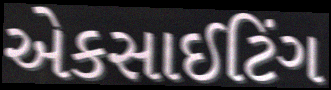
એકસાઈટિંગ